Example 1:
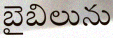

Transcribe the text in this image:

బైబిలును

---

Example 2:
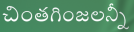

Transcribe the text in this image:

చింతగింజలన్నీ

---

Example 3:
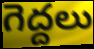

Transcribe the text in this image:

గెద్దలు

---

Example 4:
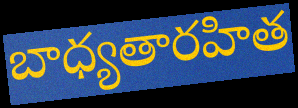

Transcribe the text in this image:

బాధ్యతారహిత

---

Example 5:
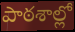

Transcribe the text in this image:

పాఠశాల్లో